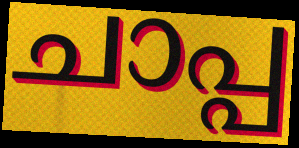
ചാപ്പ